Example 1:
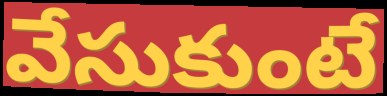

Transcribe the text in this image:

వేసుకుంటే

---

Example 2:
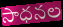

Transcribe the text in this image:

సాధనల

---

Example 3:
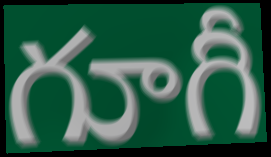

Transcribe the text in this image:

గూగీ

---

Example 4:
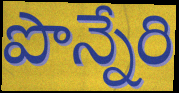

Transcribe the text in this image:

పొన్నేరి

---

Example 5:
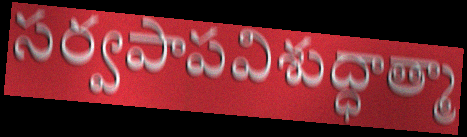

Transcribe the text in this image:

సర్వపాపవిశుద్ధాత్మా